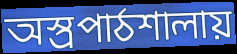
অস্ত্রপাঠশালায়